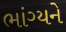
ભાંગ્યને